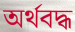
অর্থবদ্ধ